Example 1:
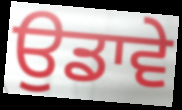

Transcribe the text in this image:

ਉਡਾਵੇ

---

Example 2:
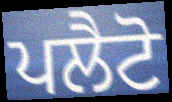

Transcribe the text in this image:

ਪਲੈਟੋ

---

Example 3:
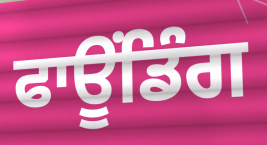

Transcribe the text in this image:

ਫਾਊਂਡਿੰਗ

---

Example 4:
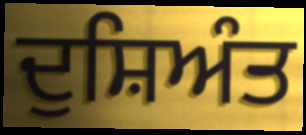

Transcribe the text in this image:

ਦੁਸ਼ਿਅੰਤ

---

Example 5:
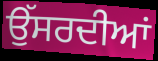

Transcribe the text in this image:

ਉੱਸਰਦੀਆਂ